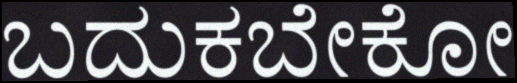
ಬದುಕಬೇಕೋ